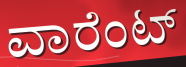
ವಾರೆಂಟ್